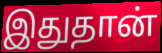
இதுதான்